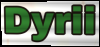
Dyrii